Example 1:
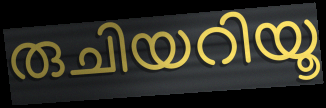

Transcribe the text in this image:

രുചിയറിയൂ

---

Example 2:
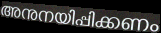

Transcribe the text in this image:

അനുനയിപ്പിക്കണം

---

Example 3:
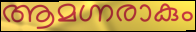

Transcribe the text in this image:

ആമഗ്നരാകും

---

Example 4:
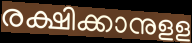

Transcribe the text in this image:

രക്ഷിക്കാനുളള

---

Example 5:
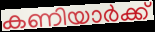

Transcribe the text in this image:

കണിയാർക്ക്